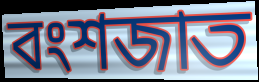
বংশজাত